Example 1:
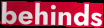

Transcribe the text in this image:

behinds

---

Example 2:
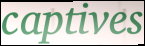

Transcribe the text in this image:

captives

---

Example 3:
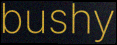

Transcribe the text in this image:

bushy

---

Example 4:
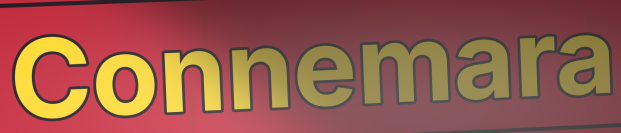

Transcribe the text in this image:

Connemara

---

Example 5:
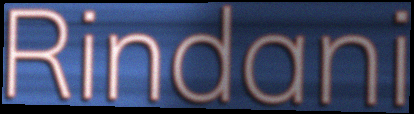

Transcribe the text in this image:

Rindani